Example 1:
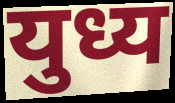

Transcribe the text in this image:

युध्य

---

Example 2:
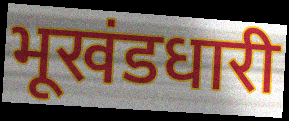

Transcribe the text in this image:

भूखंडधारी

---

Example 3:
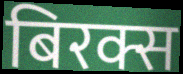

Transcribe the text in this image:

बिरक्स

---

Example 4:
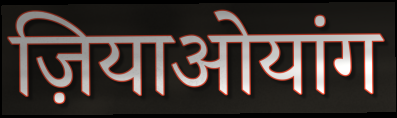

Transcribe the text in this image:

ज़ियाओयांग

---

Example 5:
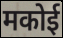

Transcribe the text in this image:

मकोई